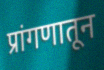
प्रांगणातून